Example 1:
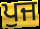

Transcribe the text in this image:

ਪੁਜ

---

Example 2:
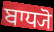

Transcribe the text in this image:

ਬਾਧ੍ਯੋ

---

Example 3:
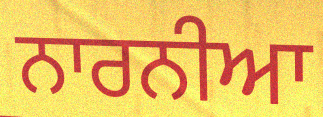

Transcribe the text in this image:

ਨਾਰਨੀਆ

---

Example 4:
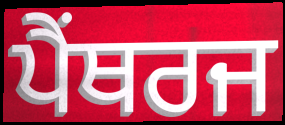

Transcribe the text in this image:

ਪੈਂਥਰਜ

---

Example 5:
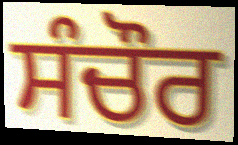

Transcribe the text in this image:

ਸੰਚੌਰ